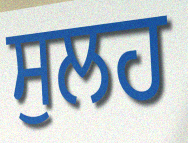
ਸੁਲਹ